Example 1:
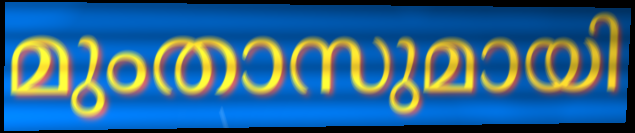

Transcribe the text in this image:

മുംതാസുമായി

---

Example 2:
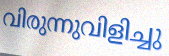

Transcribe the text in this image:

വിരുന്നുവിളിച്ചു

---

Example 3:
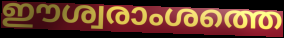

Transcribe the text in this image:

ഈശ്വരാംശത്തെ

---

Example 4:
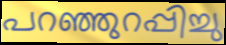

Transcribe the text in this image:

പറഞ്ഞുറപ്പിച്ചു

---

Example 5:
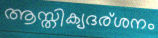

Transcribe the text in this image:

ആസ്തിക്യദര്ശനം